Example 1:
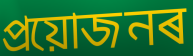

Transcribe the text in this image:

প্ৰয়োজনৰ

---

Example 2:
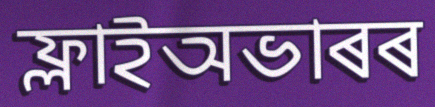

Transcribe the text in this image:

ফ্লাইঅভাৰৰ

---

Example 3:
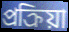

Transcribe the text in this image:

প্ৰক্ৰিয়া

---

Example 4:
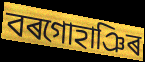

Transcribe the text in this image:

বৰগোহাঞিৰ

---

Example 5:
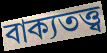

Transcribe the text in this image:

বাক্যতত্ত্ব